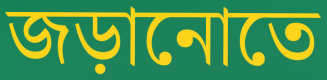
জড়ানোতে